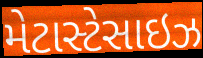
મેટાસ્ટેસાઇઝ